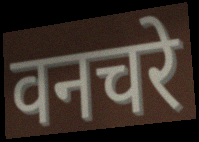
वनचरे